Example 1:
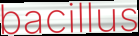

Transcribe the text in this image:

bacillus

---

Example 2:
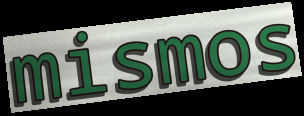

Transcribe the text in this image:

mismos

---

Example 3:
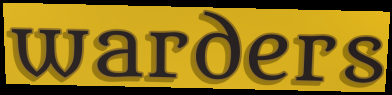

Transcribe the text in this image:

warders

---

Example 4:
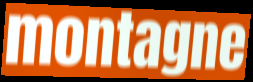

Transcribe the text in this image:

montagne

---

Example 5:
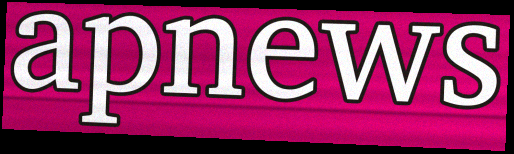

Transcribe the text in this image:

apnews